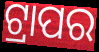
ଟ୍ରାପର